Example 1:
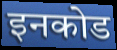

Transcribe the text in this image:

इनकोड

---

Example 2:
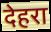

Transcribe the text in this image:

देहरा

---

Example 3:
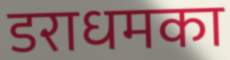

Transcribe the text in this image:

डराधमका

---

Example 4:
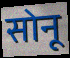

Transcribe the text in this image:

सोनू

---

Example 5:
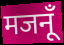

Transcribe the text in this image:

मजनूँ